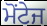
ਮੋਂਟੇਜ